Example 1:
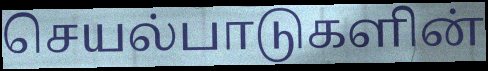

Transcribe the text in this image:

செயல்பாடுகளின்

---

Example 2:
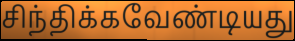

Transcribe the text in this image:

சிந்திக்கவேண்டியது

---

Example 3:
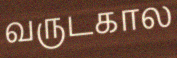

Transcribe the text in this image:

வருடகால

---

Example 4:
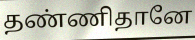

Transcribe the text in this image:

தண்ணிதானே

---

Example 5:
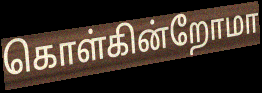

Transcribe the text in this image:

கொள்கின்றோமா